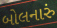
બોલનારું